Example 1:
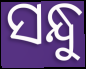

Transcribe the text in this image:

ସନ୍ଧୁ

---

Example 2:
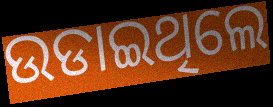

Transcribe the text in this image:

ଉଡାଇଥିଲେ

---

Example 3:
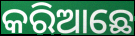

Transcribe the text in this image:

କରିଆଛେ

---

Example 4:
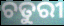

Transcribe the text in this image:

ଚତୁରୀ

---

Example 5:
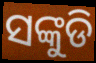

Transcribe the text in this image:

ସଙ୍କୁଡି